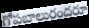
గోపబాలురందరూ